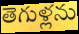
తెగుళ్లను